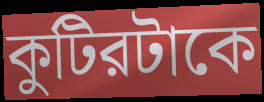
কুটিরটাকে